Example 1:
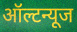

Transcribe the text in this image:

ऑल्टन्यूज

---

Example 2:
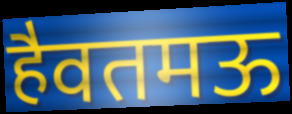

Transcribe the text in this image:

हैवतमऊ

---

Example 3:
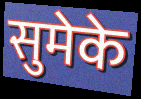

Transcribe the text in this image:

सुमेके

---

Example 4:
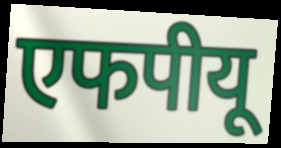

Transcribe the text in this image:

एफपीयू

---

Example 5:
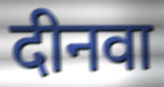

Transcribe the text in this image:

दीनवा